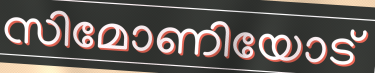
സിമോണിയോട്